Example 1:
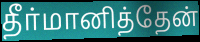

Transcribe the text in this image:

தீர்மானித்தேன்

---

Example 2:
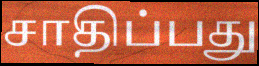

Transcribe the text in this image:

சாதிப்பது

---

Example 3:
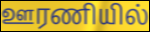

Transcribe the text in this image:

ஊரணியில்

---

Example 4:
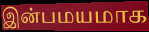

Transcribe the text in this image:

இன்பமயமாக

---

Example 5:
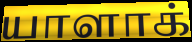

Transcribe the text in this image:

யாளாக்